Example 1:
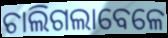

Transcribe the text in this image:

ଚାଲିଗଲାବେଳେ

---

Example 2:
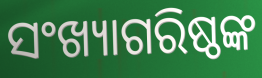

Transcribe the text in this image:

ସଂଖ୍ୟାଗରିଷ୍ଠଙ୍କ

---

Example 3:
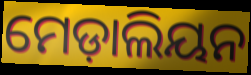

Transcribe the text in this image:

ମେଡ଼ାଲିୟନ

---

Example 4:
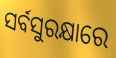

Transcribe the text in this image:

ସର୍ବସୁରକ୍ଷାରେ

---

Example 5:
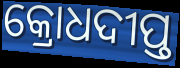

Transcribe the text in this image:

କ୍ରୋଧଦୀପ୍ତ